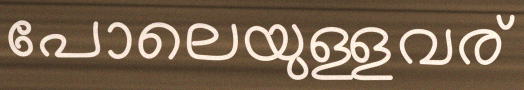
പോലെയുള്ളവര്